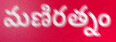
మణిరత్నం